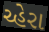
ચ્હેરા